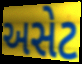
અસેટ